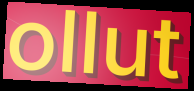
ollut